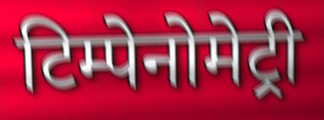
टिम्पेनोमेट्री